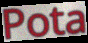
Pota